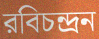
রবিচন্দ্রন